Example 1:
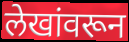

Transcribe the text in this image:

लेखांवरून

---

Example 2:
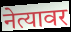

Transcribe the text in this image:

नेत्यावर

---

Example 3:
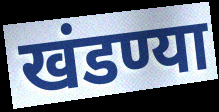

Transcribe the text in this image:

खंडण्या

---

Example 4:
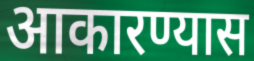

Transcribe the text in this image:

आकारण्यास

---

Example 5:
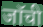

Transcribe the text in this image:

जॉची